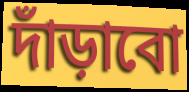
দাঁড়াবো